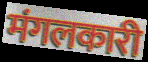
मंगलकारी